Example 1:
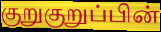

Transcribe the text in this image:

குறுகுறுப்பின்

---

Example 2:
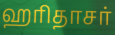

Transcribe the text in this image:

ஹரிதாசர்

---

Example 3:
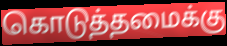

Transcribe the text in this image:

கொடுத்தமைக்கு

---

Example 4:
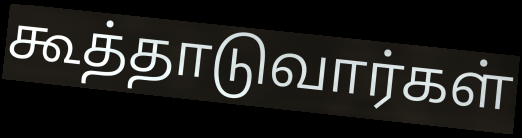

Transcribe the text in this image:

கூத்தாடுவார்கள்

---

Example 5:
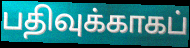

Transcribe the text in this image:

பதிவுக்காகப்